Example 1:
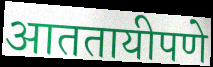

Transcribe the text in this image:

आततायीपणे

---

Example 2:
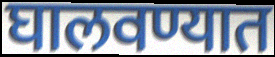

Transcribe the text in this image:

घालवण्यात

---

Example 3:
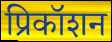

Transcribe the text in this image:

प्रिकॉशन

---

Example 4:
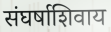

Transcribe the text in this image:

संघर्षाशिवाय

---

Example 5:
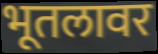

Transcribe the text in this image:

भूतलावर